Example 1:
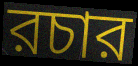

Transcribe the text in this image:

রচার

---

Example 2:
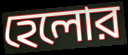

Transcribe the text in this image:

হেলোর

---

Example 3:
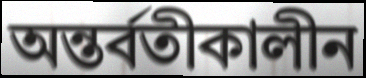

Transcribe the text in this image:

অন্তর্বতীকালীন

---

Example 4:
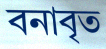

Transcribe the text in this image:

বনাবৃত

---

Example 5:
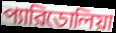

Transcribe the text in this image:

প্যারিডোলিয়া